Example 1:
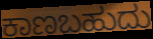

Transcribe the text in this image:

ಕಾಣಬಹುದು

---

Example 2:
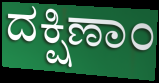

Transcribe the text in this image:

ದಕ್ಷಿಣಾಂ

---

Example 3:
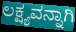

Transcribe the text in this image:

ಲಕ್ಷ್ಯವನ್ನಾಗಿ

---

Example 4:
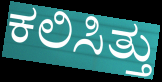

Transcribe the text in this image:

ಕಲಿಸಿತ್ತು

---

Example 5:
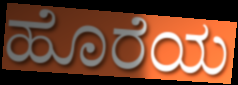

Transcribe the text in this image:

ಹೊರೆಯ